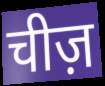
चीज़